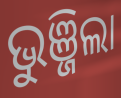
ଭୁଞ୍ଜିଲା